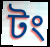
টং